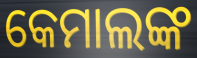
କେମାଲଙ୍କ